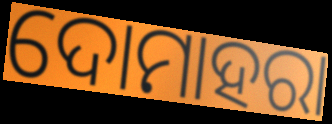
ଦୋମାହରା